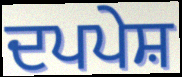
ਦਪਪੇਸ਼